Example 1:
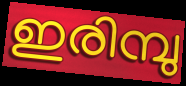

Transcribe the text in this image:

ഇരിമ്പു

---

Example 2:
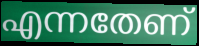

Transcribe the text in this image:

എന്നതേണ്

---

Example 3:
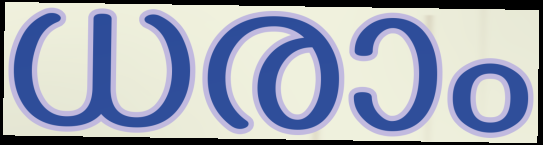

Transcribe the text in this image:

ധരാം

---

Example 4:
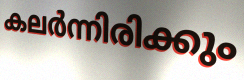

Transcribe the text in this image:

കലർന്നിരിക്കും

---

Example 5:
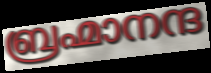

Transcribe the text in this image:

ബ്രഹ്മാനന്ദ